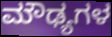
ಮೌಢ್ಯಗಳ